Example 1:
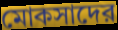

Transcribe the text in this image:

মোকসাদের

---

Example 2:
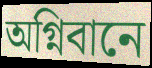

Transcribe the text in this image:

অগ্নিবানে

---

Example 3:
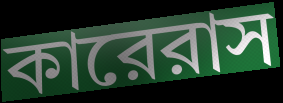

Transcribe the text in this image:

কারেরাস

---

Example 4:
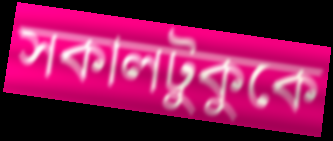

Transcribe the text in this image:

সকালটুকুকে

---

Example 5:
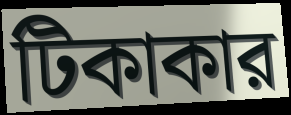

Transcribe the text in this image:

টিকাকার